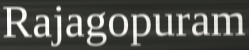
Rajagopuram